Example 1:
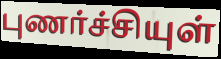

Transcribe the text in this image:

புணர்ச்சியுள்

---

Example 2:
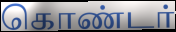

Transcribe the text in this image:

கொண்டர்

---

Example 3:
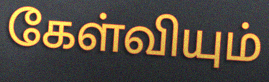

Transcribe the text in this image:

கேள்வியும்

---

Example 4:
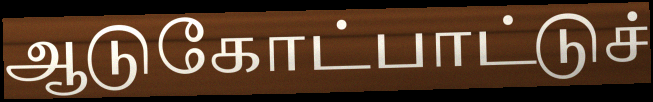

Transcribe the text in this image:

ஆடுகோட்பாட்டுச்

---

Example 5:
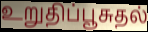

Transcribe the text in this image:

உறுதிப்பூசுதல்